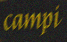
campi